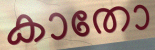
കാതോ